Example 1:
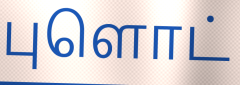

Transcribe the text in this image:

புளொட்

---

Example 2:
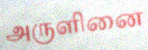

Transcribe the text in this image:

அருளினை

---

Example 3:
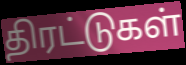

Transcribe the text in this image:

திரட்டுகள்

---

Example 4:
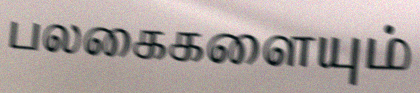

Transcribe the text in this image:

பலகைகளையும்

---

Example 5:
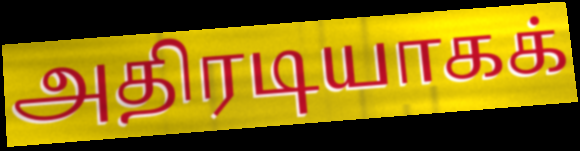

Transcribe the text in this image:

அதிரடியாகக்